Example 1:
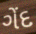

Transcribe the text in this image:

ગેંદ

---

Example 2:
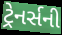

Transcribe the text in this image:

ટ્રેનર્સની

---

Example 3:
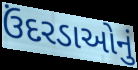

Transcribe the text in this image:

ઉંદરડાઓનું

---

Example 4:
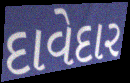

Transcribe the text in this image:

દાવેદાર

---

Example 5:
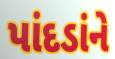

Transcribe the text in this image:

પાંદડાંને